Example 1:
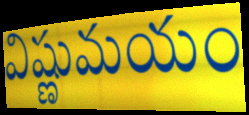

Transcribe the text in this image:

విష్ణుమయం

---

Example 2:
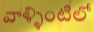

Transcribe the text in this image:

వాళ్ళింటిలో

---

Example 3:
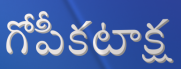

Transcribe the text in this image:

గోపీకటాక్ష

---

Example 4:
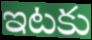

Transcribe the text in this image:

ఇటకు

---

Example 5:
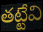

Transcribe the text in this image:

తట్టేవి